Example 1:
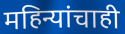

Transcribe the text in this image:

महिन्यांचाही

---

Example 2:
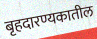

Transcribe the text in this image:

बृहदारण्यकातील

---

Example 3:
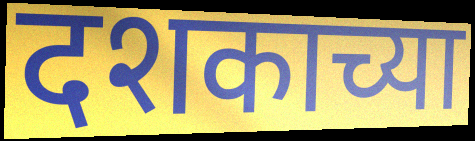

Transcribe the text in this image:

दशकाच्या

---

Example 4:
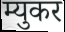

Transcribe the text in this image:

म्युकर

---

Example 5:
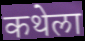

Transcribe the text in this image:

कथेला